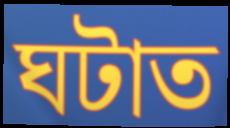
ঘটাত